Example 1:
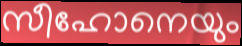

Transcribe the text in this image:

സീഹോനെയും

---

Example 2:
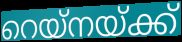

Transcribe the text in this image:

റെയ്നയ്ക്ക്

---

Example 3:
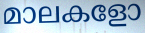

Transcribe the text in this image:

മാലകളോ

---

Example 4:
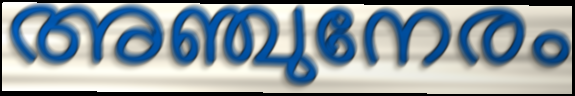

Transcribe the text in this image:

അഞ്ചുനേരം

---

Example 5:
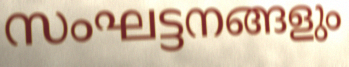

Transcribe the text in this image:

സംഘട്ടനങ്ങളും